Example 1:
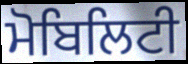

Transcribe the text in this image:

ਮੋਬਿਲਿਟੀ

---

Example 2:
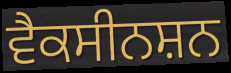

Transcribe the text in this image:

ਵੈਕਸੀਨਸ਼ਨ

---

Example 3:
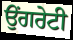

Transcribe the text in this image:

ਉਂਗਰੇਟੀ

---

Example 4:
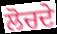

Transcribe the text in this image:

ਲੋਚਦੇ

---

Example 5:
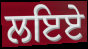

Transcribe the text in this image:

ਲਇਏ